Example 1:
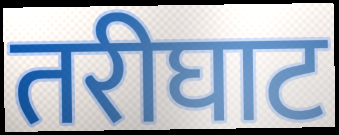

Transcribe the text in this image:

तरीघाट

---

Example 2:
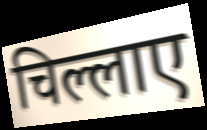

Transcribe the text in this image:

चिल्लाए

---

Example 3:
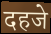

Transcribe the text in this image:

दहजे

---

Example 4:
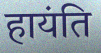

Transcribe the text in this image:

हायंति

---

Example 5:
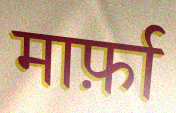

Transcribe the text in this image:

मार्फ़ा